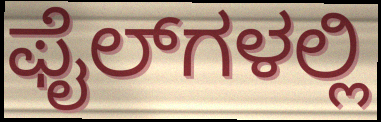
ಫೈಲ್‌ಗಳಲ್ಲಿ